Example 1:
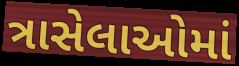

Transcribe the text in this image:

ત્રાસેલાઓમાં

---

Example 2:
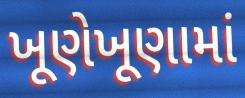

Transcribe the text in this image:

ખૂણેખૂણામાં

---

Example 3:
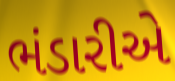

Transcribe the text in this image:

ભંડારીએ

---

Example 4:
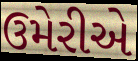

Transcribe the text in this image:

ઉમેરીએ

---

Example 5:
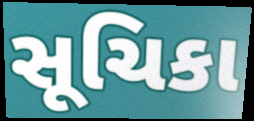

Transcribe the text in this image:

સૂચિકા